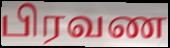
பிரவண